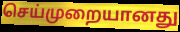
செய்முறையானது